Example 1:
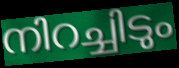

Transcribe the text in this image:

നിറച്ചിടും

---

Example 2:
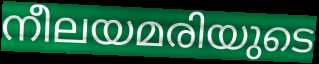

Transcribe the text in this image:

നീലയമരിയുടെ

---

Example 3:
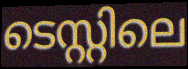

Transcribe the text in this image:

ടെസ്റ്റിലെ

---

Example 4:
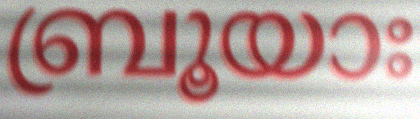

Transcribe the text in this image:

ബ്രൂയാഃ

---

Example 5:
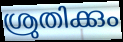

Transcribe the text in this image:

ശ്രുതിക്കും